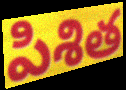
పిశిత